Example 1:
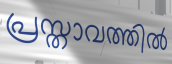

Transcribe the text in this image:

പ്രസ്താവത്തിൽ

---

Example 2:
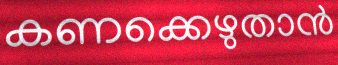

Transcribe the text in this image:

കണക്കെഴുതാൻ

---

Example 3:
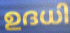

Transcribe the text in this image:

ഉദധി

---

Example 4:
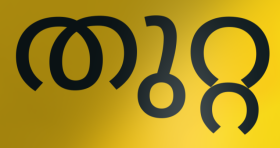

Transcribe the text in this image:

തുറ്റ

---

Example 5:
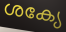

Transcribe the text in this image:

ശക്യേ